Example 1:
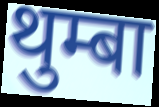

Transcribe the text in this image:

थुम्बा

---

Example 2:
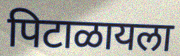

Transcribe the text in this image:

पिटाळायला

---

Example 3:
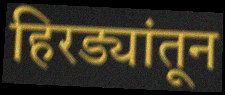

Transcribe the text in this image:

हिरड्यांतून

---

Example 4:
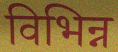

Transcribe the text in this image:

विभिन्न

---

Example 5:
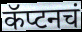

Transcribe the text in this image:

कॅप्टनचं